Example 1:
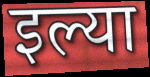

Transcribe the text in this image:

इल्या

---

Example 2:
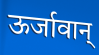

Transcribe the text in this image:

ऊर्जावान्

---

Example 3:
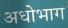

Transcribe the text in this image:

अधोभाग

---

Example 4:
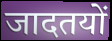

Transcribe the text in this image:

जादतयों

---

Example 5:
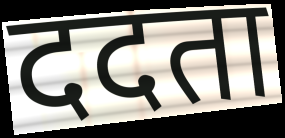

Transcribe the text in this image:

ददता